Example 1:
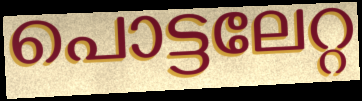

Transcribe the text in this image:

പൊട്ടലേറ്റ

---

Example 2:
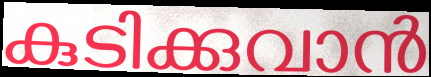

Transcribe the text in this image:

കുടിക്കുവാൻ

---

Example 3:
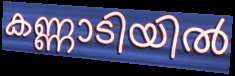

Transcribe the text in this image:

കണ്ണാടിയിൽ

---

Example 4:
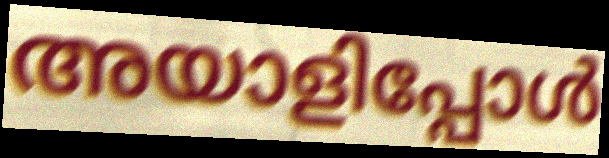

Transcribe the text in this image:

അയാളിപ്പോൾ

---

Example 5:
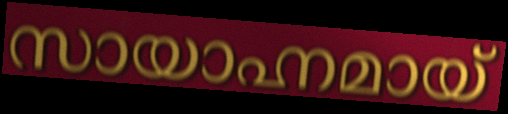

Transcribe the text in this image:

സായാഹ്നമായ്